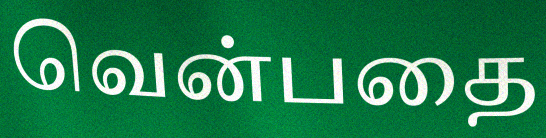
வென்பதை